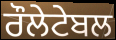
ਰੌਲੇਟੇਬਲ